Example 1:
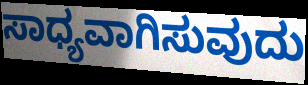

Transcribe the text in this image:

ಸಾಧ್ಯವಾಗಿಸುವುದು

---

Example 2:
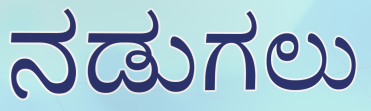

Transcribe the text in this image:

ನಡುಗಲು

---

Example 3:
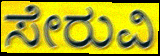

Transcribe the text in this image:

ಸೇರುವಿ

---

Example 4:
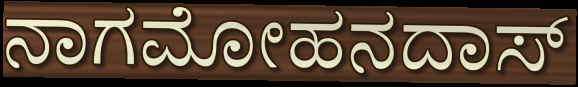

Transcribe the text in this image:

ನಾಗಮೋಹನದಾಸ್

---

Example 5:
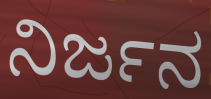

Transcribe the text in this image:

ನಿರ್ಜನ